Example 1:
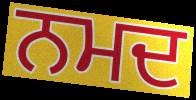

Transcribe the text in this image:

ਨਮਦ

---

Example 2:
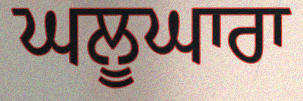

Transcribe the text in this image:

ਘਲੂਘਾਰਾ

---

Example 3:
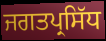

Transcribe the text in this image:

ਜਗਤਪ੍ਰਸਿੱਧ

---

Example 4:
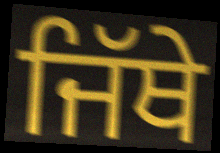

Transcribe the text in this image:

ਜਿੱਥੇ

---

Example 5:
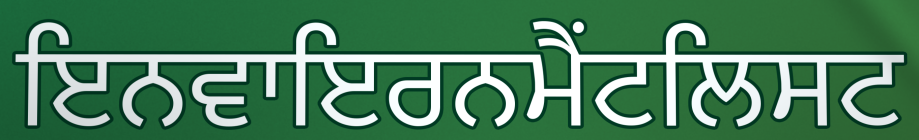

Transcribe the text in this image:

ਇਨਵਾਇਰਨਮੈਂਟਲਿਸਟ